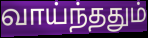
வாய்ந்ததும்